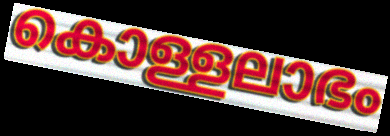
കൊള്ളലാഭം